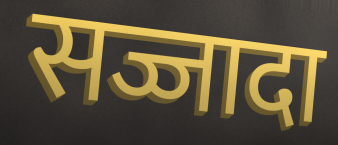
सज्जादा